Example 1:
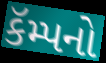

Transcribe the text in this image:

કૅમ્પનો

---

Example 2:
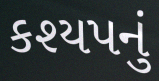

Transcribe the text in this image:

કશ્યપનું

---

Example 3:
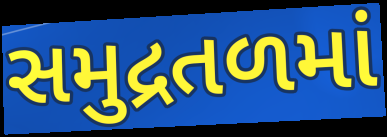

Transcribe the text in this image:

સમુદ્રતળમાં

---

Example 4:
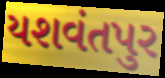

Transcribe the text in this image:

યશવંતપુર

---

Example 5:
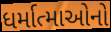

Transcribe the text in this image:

ધર્માત્માઓનો